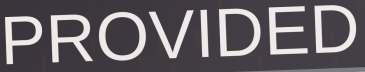
PROVIDED